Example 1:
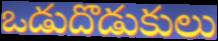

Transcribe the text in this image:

ఒడుదొడుకులు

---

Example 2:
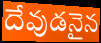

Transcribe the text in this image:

దేవుడనైన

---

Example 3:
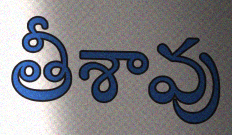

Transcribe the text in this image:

తీశావు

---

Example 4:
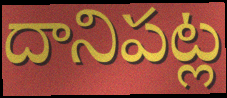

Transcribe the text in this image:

దానిపట్ల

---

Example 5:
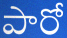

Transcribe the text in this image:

పారో